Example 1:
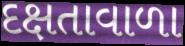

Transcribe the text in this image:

દક્ષતાવાળા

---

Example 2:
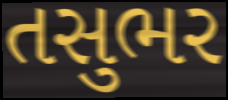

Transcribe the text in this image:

તસુભર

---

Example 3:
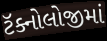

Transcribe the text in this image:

ટૅક્નોલોજીમાં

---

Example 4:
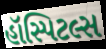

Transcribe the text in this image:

હૉસ્પિટલ્સ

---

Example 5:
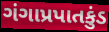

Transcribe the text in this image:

ગંગાપ્રપાતકુંડ